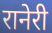
रानेरी